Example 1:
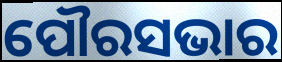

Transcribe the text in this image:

ପୌରସଭାର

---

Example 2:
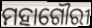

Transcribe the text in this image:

ମହାଗୌରୀ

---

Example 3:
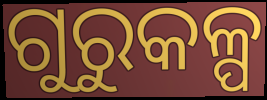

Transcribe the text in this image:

ଗୁରୁକଳ୍ପ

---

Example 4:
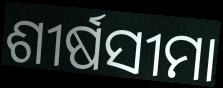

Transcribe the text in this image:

ଶୀର୍ଷସୀମା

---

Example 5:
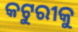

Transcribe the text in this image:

କଟୁରୀକୁ